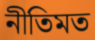
নীতিমত